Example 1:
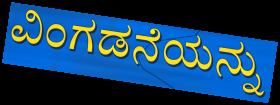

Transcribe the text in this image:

ವಿಂಗಡನೆಯನ್ನು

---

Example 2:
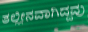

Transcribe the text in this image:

ತಲ್ಲೀನವಾಗಿದ್ದವು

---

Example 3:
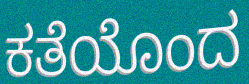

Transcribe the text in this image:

ಕತೆಯೊಂದ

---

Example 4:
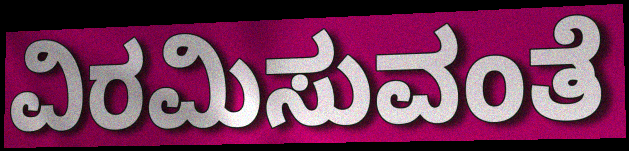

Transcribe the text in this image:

ವಿರಮಿಸುವಂತೆ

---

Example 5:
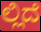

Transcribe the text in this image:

ಲ್ಲಿದೆ